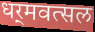
धर्मवत्सल